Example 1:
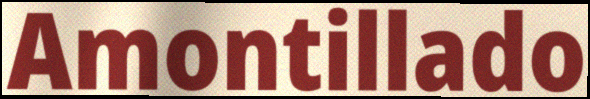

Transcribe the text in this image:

Amontillado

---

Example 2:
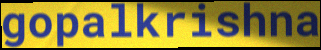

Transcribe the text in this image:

gopalkrishna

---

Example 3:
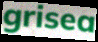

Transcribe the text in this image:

grisea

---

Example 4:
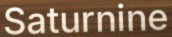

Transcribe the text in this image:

Saturnine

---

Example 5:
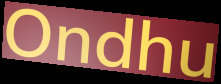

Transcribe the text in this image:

Ondhu